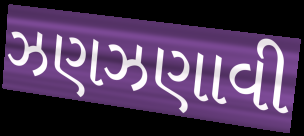
ઝણઝણાવી